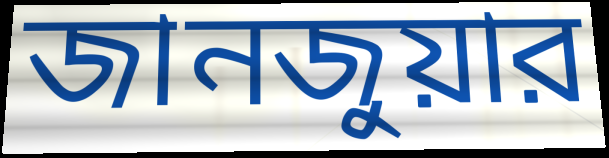
জানজুয়ার